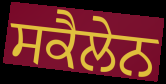
ਸਕੈਲੇਨ